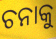
ଚନାକୁ